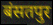
बंसतपुर